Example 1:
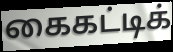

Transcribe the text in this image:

கைகட்டிக்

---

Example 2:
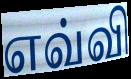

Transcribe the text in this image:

எவ்வி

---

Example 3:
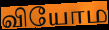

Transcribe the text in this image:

வியோம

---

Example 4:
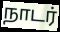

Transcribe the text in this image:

நாடர்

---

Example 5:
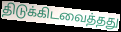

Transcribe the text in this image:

திடுக்கிடவைத்தது